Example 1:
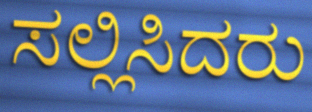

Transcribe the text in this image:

ಸಲ್ಲಿಸಿದರು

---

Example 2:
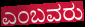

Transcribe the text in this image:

ಎಂಬವರು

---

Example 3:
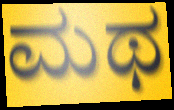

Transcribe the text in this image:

ಮಥ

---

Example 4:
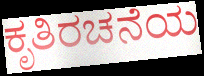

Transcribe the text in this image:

ಕೃತಿರಚನೆಯ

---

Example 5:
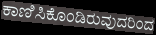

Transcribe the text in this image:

ಕಾಣಿಸಿಕೊಂಡಿರುವುದರಿಂದ